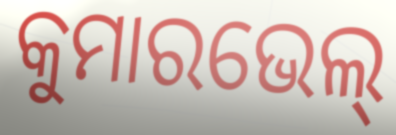
କୁମାରଭେଲ୍